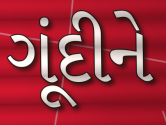
ગૂંદીને